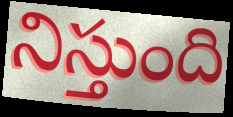
నిస్తుంది